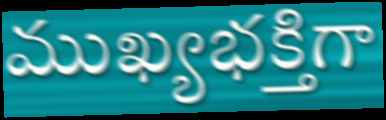
ముఖ్యభక్తిగా